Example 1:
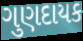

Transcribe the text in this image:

ગુણદાયક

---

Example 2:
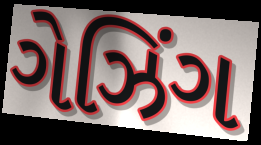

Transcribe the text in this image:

ગેઝિંગ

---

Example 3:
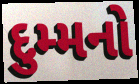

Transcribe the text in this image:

દુમ્મનો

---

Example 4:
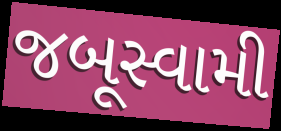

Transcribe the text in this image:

જબૂસ્વામી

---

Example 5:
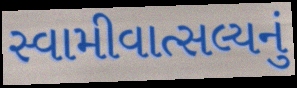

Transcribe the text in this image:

સ્વામીવાત્સલ્યનું